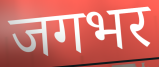
जगभर